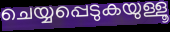
ചെയ്യപ്പെടുകയുള്ളൂ